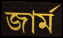
জার্ম